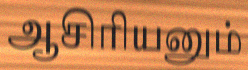
ஆசிரியனும்